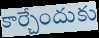
కార్చేందుకు